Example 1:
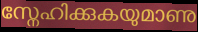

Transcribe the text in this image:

സ്നേഹിക്കുകയുമാണു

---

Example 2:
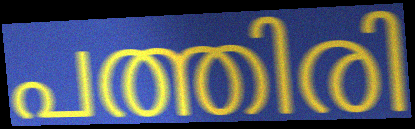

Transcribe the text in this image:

പത്തിരി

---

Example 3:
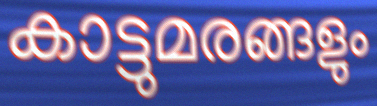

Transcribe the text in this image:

കാട്ടുമരങ്ങളും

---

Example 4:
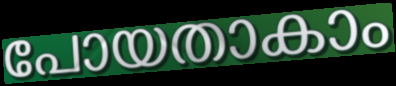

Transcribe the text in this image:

പോയതാകാം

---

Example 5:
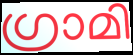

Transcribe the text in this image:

ഗ്രാമി